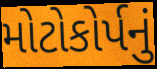
મોટોકોર્પનું